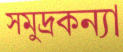
সমুদ্রকন্যা